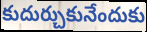
కుదుర్చుకునేందుకు